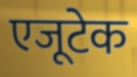
एजूटेक